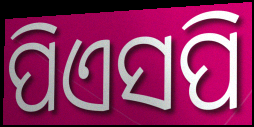
ପିଏସପି